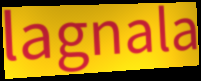
lagnala